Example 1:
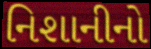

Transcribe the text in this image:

નિશાનીનો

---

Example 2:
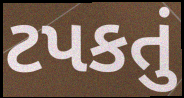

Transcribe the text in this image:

ટપકતું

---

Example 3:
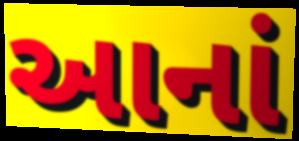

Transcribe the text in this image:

આનાં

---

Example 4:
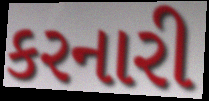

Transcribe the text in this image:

કરનારી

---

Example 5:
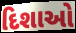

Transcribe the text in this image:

દિશાઓ